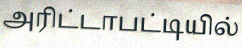
அரிட்டாபட்டியில்